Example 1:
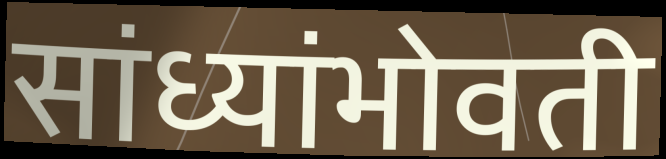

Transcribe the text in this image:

सांध्यांभोवती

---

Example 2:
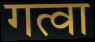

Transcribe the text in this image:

गत्वा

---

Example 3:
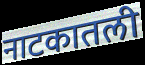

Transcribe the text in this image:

नाटकातली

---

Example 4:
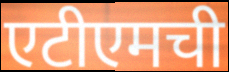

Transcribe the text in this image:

एटीएमची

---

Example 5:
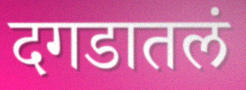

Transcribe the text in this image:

दगडातलं